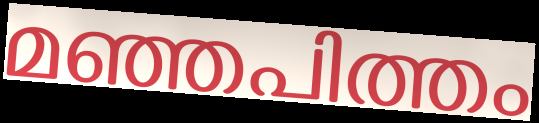
മഞ്ഞപിത്തം